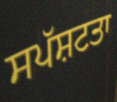
ਸਪੱਸ਼ਟਤਾ